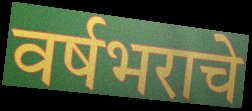
वर्षभराचे